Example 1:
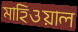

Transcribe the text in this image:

মাহিওয়াল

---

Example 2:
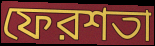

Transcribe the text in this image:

ফেরশতা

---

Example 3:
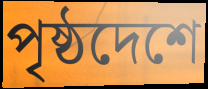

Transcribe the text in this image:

পৃষ্ঠদেশে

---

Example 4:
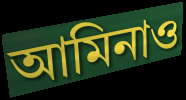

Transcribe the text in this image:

আমিনাও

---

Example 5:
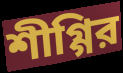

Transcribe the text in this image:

শীগ্গির